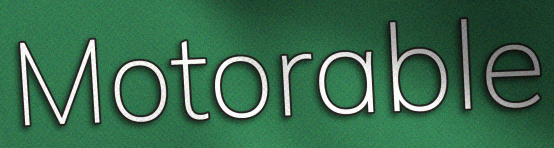
Motorable